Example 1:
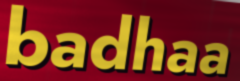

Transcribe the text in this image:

badhaa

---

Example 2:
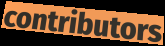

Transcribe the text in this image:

contributors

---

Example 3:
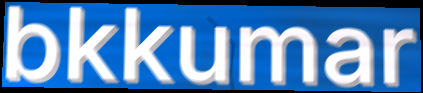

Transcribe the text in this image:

bkkumar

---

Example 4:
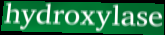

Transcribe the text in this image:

hydroxylase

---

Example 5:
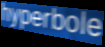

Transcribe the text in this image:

hyperbole